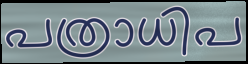
പത്രാധിപ